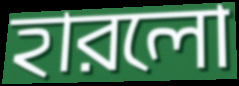
হারলো